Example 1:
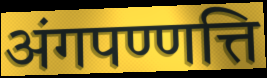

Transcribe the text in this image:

अंगपण्णत्ति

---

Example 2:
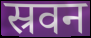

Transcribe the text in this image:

स्रवन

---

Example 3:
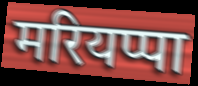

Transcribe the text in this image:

मरियप्पा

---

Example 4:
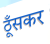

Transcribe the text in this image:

ठूँसकर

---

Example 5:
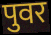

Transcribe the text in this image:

पुवर